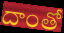
దాంతో